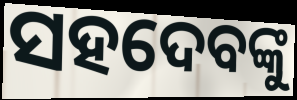
ସହଦେବଙ୍କୁ